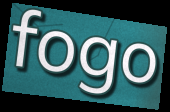
fogo